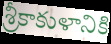
శ్రీకాకుళానికి